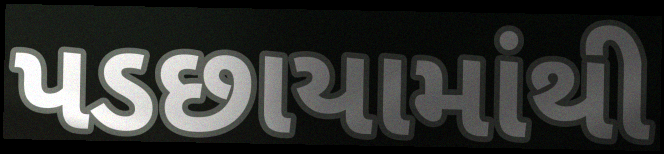
પડછાયામાંથી